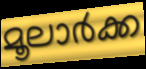
മൂലാർക്ക